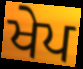
ਖੇਪ